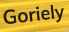
Goriely